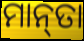
ମାନ୍‌ତା